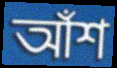
আঁশ